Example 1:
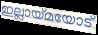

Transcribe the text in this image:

ഇല്ലായ്മയോട്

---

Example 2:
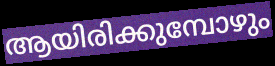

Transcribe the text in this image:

ആയിരിക്കുമ്പോഴും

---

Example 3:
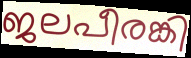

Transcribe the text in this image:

ജലപീരങ്കി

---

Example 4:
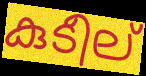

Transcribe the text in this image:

കുടീല്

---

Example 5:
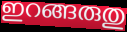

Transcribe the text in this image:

ഇറങ്ങരുതു